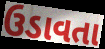
ઉડાવતા